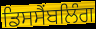
ਡਿਸਸੈਂਬਲਿੰਗ